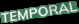
TEMPORAL